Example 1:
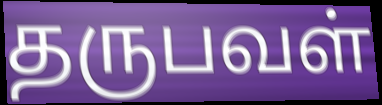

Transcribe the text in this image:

தருபவள்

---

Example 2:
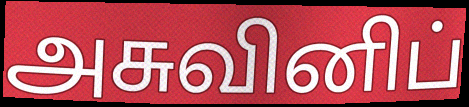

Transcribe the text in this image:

அசுவினிப்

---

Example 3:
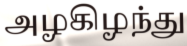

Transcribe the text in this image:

அழகிழந்து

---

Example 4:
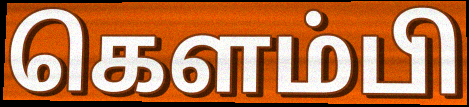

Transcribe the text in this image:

கெளம்பி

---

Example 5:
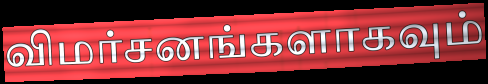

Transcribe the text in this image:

விமர்சனங்களாகவும்